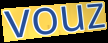
vouz